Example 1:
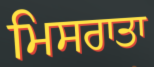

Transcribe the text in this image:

ਮਿਸਰਾਤਾ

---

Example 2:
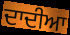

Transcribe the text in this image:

ਦਾਦੀਆ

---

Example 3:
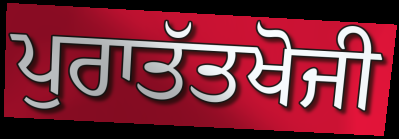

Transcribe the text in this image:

ਪੁਰਾਤੱਤਖੋਜੀ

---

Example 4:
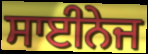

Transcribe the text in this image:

ਸਾਈਨੇਜ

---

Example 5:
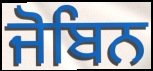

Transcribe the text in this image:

ਜੋਬਿਨ